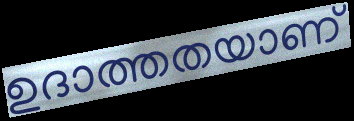
ഉദാത്തതയാണ്